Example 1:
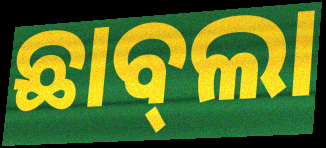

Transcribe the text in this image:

ଛାବ୍‍ଲା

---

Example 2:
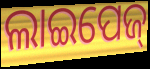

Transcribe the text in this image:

ଲାଇପେଜ୍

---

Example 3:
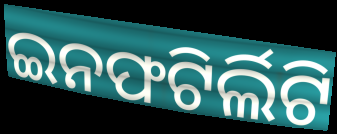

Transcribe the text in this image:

ଇନଫଟିର୍ଲିଟି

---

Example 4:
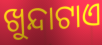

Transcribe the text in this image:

ଖୁନ୍ଦାଟାଏ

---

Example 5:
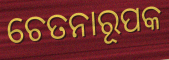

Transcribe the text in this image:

ଚେତନାରୂପକ